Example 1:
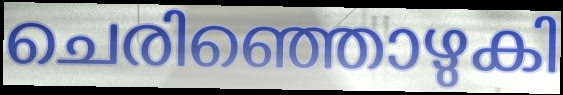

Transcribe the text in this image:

ചെരിഞ്ഞൊഴുകി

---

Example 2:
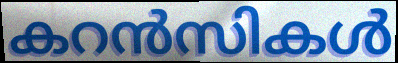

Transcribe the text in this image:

കറൻസികൾ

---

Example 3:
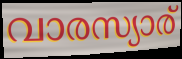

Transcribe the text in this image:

വാരസ്യാര്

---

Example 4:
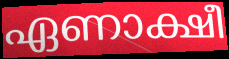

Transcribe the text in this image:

ഏണാക്ഷീ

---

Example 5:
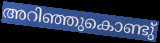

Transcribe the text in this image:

അറിഞ്ഞുകൊണ്ടു്